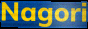
Nagori